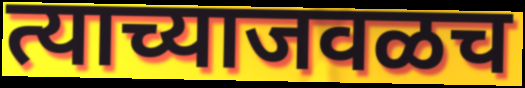
त्याच्याजवळच